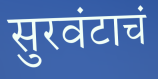
सुरवंटाचं